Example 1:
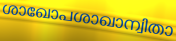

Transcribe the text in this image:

ശാഖോപശാഖാന്വിതാ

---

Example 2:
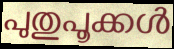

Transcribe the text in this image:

പുതുപൂക്കൾ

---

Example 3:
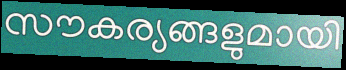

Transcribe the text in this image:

സൗകര്യങ്ങളുമായി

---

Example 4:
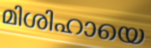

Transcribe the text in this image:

മിശിഹായെ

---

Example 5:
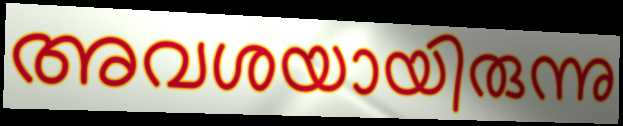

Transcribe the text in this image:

അവശയായിരുന്നു